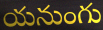
యనుంగు